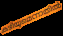
കഴിയുമെന്നതിൽ